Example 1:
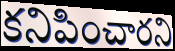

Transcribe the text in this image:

కనిపించారని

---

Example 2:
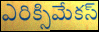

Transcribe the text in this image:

ఎరిక్సిమేకస్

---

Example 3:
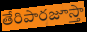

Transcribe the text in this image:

తేరిపారజూస్తా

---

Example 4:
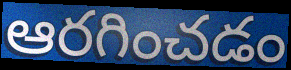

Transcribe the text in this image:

ఆరగించడం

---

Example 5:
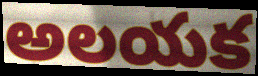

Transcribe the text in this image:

అలయక